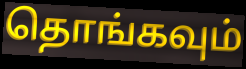
தொங்கவும்